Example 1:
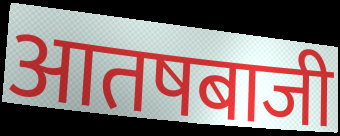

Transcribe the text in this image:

आतषबाजी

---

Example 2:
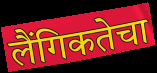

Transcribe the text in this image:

लैंगिकतेचा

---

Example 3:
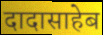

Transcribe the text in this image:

दादासाहेब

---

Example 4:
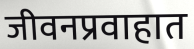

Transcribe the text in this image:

जीवनप्रवाहात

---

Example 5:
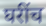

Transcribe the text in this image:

घरींच